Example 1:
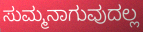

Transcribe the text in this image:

ಸುಮ್ಮನಾಗುವುದಲ್ಲ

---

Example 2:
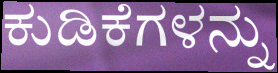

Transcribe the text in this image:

ಕುಡಿಕೆಗಳನ್ನು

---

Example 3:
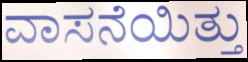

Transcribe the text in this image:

ವಾಸನೆಯಿತ್ತು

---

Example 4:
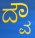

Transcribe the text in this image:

ದ್ವೌ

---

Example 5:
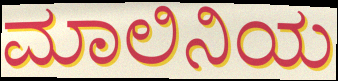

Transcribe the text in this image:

ಮಾಲಿನಿಯ